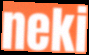
neki